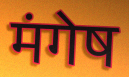
मंगेष